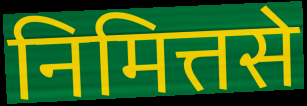
निमित्तसे